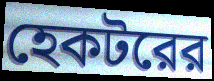
হেকটরের